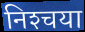
निश्चया